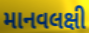
માનવલક્ષી